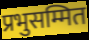
प्रभुसम्मित